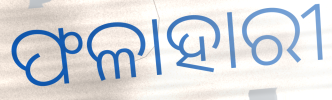
ଫଳାହାରୀ